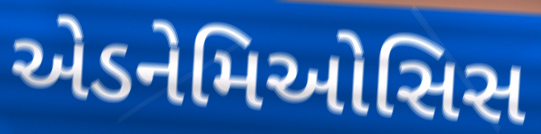
એડનેમિઓસિસ